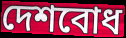
দেশবোধ